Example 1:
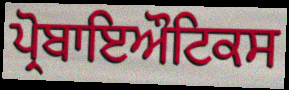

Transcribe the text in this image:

ਪ੍ਰੋਬਾਇਔਟਿਕਸ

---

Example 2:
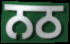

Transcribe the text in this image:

ਨਠ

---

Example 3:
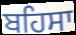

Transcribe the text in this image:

ਬਹਿਸਾ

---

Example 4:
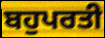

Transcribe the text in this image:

ਬਹੁਪਰਤੀ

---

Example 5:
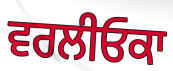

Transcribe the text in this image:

ਵਰਲੀਓਕਾ